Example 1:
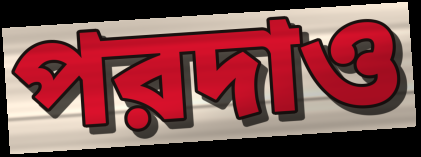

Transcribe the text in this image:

পরদাও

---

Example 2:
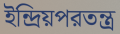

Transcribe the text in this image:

ইন্দ্রিয়পরতন্ত্র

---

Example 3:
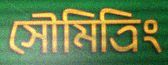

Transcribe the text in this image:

সৌমিত্রিং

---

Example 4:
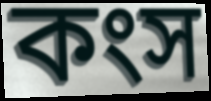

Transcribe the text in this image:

কংস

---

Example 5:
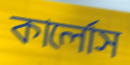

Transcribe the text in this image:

কার্লোস